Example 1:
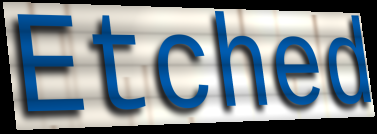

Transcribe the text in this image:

Etched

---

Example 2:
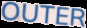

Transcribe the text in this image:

OUTER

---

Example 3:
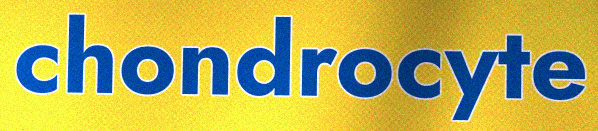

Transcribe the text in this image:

chondrocyte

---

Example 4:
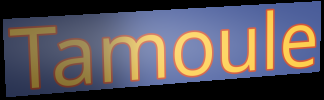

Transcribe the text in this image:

Tamoule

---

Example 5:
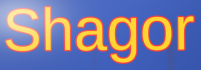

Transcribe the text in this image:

Shagor